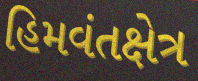
હિમવંતક્ષેત્ર